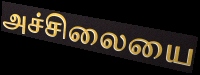
அச்சிலையை